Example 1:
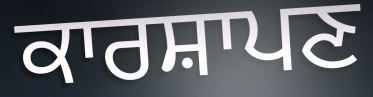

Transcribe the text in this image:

ਕਾਰਸ਼ਾਪਣ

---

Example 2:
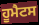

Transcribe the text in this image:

ਹੂਮੈਟਸ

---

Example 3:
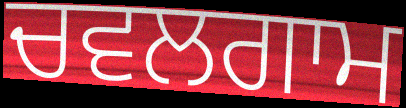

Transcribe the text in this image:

ਚਵਲਗਾਮ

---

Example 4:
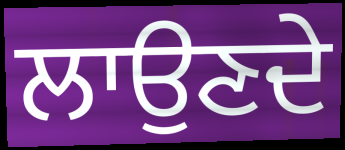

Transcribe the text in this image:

ਲਾਉਣਦੇ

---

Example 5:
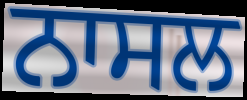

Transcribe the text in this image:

ਨਾਸਲ